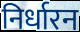
निर्धारन